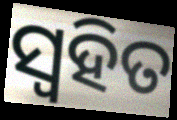
ସ୍ୱହିତ